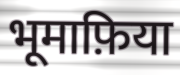
भूमाफ़िया